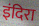
इंदिरा